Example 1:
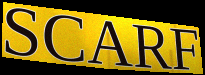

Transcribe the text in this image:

SCARF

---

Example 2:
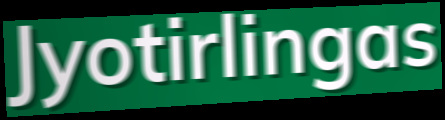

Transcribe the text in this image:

Jyotirlingas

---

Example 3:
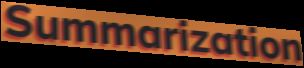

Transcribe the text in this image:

Summarization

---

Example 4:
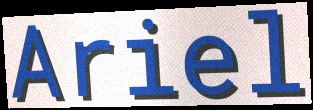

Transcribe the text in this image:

Ariel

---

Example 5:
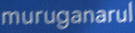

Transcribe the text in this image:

muruganarul